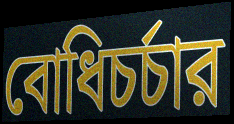
বোধিচর্চার